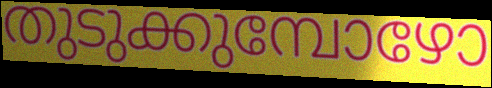
തുടുക്കുമ്പോഴോ